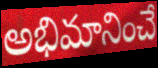
అభిమానించే